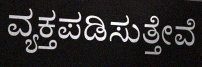
ವ್ಯಕ್ತಪಡಿಸುತ್ತೇವೆ